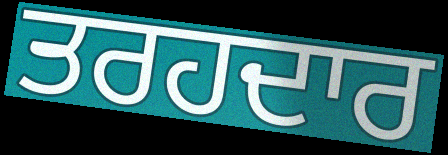
ਤਰਹਦਾਰ